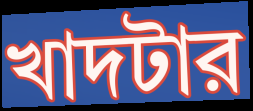
খাদটার